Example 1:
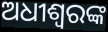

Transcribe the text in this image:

ଅଧୀଶ୍ୱରଙ୍କ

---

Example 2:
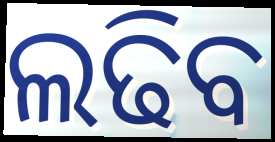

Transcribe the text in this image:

ଲଢିବ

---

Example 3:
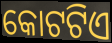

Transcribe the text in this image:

କୋଟଟିଏ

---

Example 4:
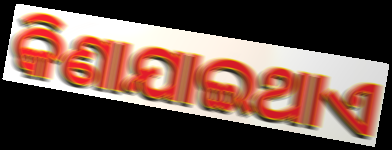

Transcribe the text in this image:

କିଣାଯାଇଥାଏ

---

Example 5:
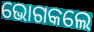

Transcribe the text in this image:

ଭୋଗକଲେ